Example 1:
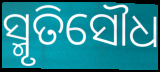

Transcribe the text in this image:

ସ୍ମୃତିସୌଧ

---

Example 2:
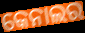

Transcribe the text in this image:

କେନାଲର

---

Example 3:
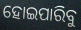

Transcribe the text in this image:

ହୋଇପାରିବୁ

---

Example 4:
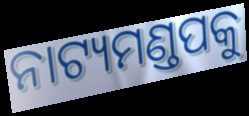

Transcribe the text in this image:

ନାଟ୍ୟମଣ୍ଡପକୁ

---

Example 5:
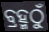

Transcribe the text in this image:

ବ୍ରହ୍ମଠୁଁ